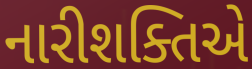
નારીશક્તિએ